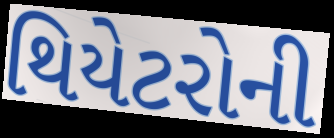
થિયેટરોની